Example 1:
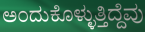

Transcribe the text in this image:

ಅಂದುಕೊಳ್ಳುತ್ತಿದ್ದೆವು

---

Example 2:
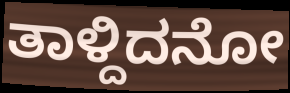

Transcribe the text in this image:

ತಾಳ್ದಿದನೋ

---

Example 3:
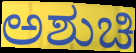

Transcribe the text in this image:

ಅಶುಚಿ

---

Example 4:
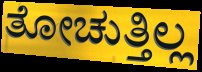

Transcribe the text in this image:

ತೋಚುತ್ತಿಲ್ಲ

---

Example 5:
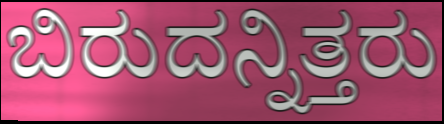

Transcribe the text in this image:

ಬಿರುದನ್ನಿತ್ತರು